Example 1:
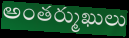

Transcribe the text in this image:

అంతర్ముఖులు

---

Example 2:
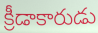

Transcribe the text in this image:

క్రీడాకారుడు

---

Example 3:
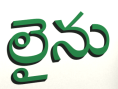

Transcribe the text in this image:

లైను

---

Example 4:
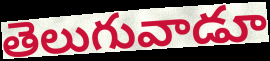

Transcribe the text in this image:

తెలుగువాడూ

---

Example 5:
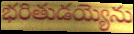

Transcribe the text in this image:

భరితుడయ్యెను